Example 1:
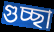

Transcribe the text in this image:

গুচ্ছা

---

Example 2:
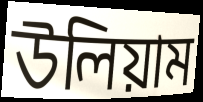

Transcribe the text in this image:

উলিয়াম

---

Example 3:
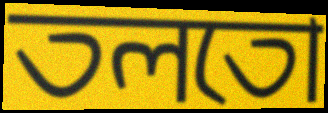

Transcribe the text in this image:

তলতো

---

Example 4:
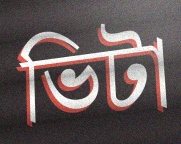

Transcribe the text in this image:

ভিটা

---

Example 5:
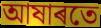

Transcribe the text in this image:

আষাৰতে